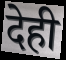
देही